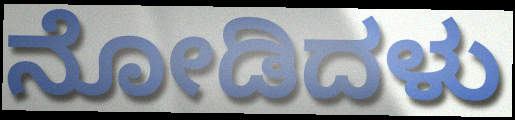
ನೋಡಿದಳು